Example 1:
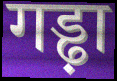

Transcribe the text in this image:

गड्ढ़ा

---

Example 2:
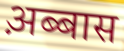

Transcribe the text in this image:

अ़ब्बास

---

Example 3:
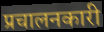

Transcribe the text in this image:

प्रचालनकारी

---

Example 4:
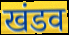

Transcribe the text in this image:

खंडव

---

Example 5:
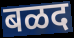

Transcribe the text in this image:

बळद